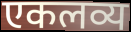
एकलव्य